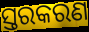
ସ୍ତରକରଣ